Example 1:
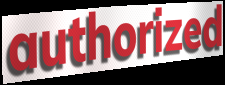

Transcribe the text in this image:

authorized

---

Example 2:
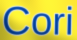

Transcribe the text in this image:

Cori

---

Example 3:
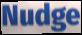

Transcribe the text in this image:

Nudge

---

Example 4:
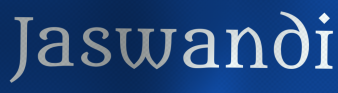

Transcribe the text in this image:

Jaswandi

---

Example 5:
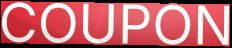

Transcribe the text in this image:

COUPON